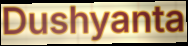
Dushyanta